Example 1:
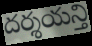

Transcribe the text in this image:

దర్శయన్తి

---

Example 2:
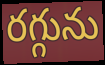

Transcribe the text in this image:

రగ్గును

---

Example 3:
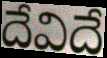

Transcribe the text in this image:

దేవిదే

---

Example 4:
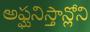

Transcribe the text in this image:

అఫ్ఘనిస్తాన్లోని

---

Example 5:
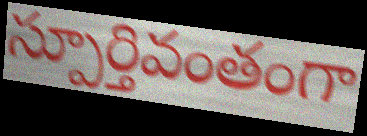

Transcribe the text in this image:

స్పూర్తివంతంగా